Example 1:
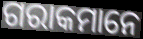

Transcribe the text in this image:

ଗରାକମାନେ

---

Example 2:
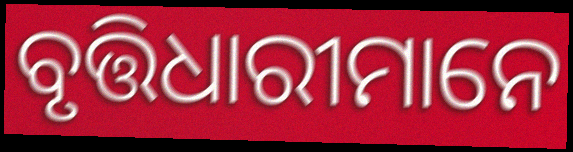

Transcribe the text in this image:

ବୃତ୍ତିଧାରୀମାନେ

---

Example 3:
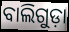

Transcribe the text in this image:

ବାଲିଗୁଡ଼ା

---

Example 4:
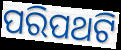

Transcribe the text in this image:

ପରିପଥଟି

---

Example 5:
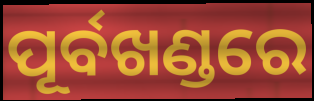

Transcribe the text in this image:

ପୂର୍ବଖଣ୍ଡରେ